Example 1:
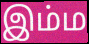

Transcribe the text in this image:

இம்ம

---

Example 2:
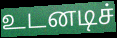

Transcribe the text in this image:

உடனடிச்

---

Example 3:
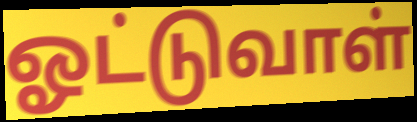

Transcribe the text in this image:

ஓட்டுவாள்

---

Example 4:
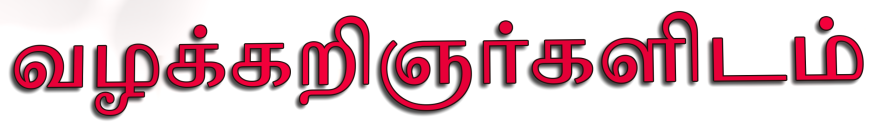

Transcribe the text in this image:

வழக்கறிஞர்களிடம்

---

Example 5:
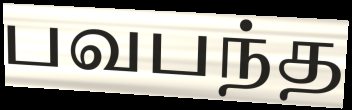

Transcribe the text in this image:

பவபந்த